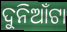
ଦୁନିଆଁଟା